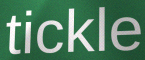
tickle